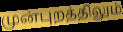
முன்புறத்திலும்